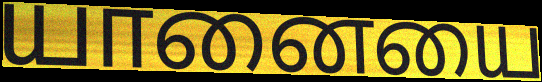
யானையை